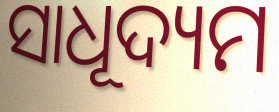
ସାଧୂଦ୍ୟମ